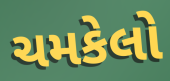
ચમકેલો